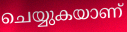
ചെയ്യുകയാണ്